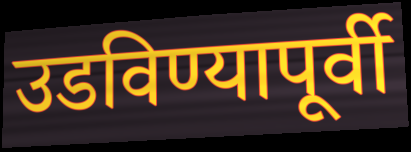
उडविण्यापूर्वी